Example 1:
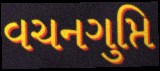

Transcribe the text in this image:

વચનગુપ્તિ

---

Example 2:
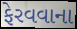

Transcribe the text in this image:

ફેરવવાના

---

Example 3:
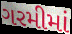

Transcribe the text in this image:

ગરમીમાં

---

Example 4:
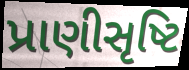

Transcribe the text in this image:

પ્રાણીસૃષ્ટિ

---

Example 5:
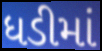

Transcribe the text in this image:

ધડીમાં